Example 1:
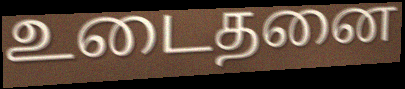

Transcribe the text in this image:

உடைதனை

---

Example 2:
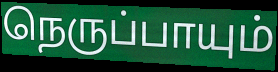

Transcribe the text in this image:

நெருப்பாயும்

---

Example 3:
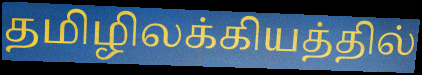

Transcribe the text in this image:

தமிழிலக்கியத்தில்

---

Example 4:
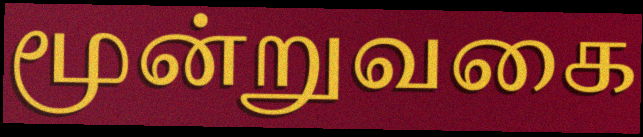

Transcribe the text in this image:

மூன்றுவகை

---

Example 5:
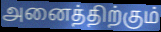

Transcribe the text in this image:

அனைத்திற்கும்